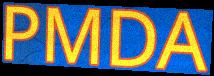
PMDA